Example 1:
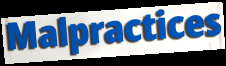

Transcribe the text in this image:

Malpractices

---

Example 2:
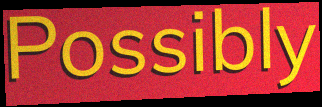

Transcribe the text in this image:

Possibly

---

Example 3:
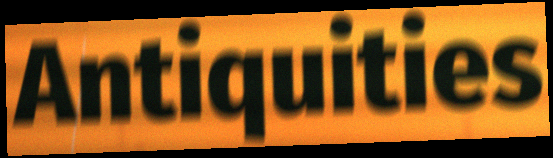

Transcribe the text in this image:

Antiquities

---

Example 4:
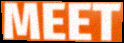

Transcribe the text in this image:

MEET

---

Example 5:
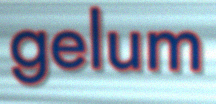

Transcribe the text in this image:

gelum